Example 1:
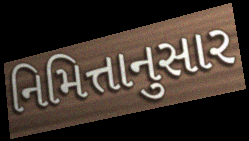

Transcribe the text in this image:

નિમિત્તાનુસાર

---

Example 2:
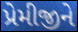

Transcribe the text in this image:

પ્રેમીજીને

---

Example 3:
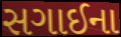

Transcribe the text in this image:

સગાઈના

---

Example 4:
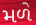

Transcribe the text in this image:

મળે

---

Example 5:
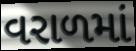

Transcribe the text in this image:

વરાળમાં